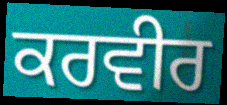
ਕਰਵੀਰ